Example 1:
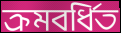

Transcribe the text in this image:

ক্রমবর্ধিত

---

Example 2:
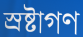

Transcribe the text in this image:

স্রষ্টাগণ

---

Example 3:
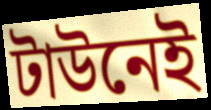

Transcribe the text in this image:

টাউনেই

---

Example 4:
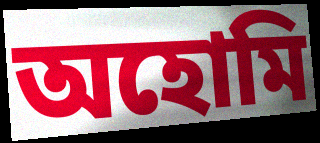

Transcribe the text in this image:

অহোমি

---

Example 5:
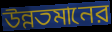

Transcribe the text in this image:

উন্নতমানের